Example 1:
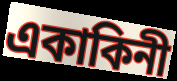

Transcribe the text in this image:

একাকিনী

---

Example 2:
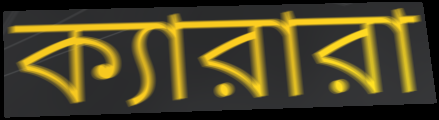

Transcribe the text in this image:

ক্যারারা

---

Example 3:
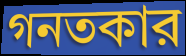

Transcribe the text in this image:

গনতকার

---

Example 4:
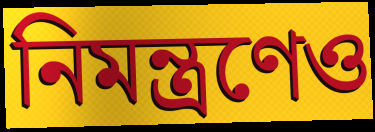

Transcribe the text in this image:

নিমন্ত্রণেও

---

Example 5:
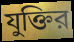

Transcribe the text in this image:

যুক্তির